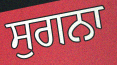
ਸੁਗਨਾ